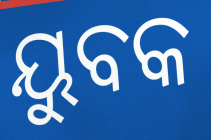
ୟୁବକ